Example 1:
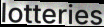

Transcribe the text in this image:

lotteries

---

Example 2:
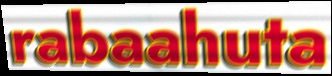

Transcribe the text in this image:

rabaahuta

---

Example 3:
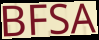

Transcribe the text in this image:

BFSA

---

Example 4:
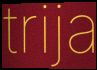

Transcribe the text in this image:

trija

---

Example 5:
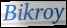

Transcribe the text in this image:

Bikroy